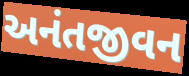
અનંતજીવન